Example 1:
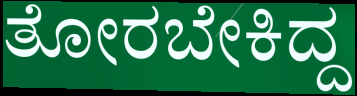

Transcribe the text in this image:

ತೋರಬೇಕಿದ್ದ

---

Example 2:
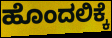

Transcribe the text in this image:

ಹೊಂದಲಿಕ್ಕೆ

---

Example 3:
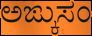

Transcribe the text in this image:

ಅಙ್ಕುಸಂ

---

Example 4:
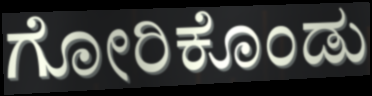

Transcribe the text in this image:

ಗೋರಿಕೊಂಡು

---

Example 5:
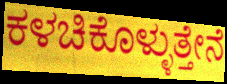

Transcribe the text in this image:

ಕಳಚಿಕೊಳ್ಳುತ್ತೇನೆ